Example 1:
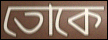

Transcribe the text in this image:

তোকে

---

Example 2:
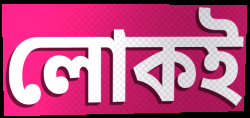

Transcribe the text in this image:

লোকই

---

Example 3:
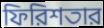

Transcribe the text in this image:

ফিরিশতার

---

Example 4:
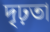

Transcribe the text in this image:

দৃঢ়তা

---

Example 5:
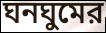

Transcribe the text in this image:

ঘনঘুমের